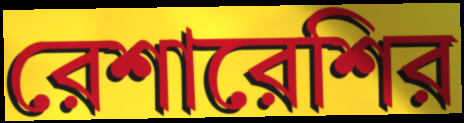
রেশারেশির